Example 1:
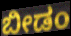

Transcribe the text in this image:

ಬೀಡಂ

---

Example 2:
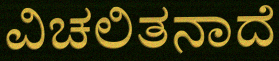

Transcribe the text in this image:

ವಿಚಲಿತನಾದೆ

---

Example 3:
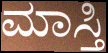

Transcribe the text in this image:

ಮಾಸ್ತಿ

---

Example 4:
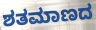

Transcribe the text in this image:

ಶತಮಾಣದ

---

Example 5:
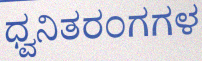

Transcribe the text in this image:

ಧ್ವನಿತರಂಗಗಳ